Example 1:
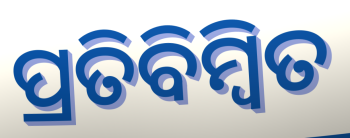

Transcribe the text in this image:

ପ୍ରତିବିମ୍ବିତ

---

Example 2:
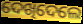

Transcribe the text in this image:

ଦେଖିଦେଲେ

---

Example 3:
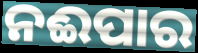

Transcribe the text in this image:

ନଈପାର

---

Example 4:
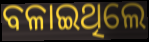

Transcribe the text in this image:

ବଳାଇଥିଲେ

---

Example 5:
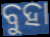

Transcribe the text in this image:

ବୁହା